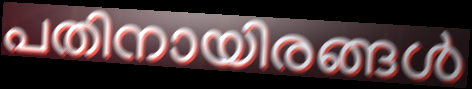
പതിനായിരങ്ങൾ